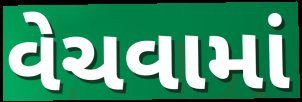
વેચવામાં